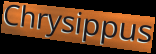
Chrysippus